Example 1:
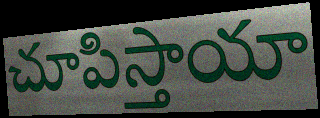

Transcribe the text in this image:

చూపిస్తాయా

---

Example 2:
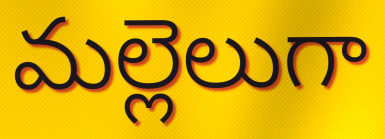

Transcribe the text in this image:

మల్లెలుగా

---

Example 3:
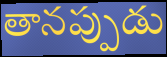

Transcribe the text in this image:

తానప్పుడు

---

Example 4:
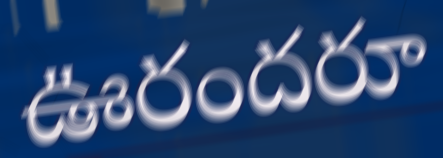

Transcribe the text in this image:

ఊరందరూ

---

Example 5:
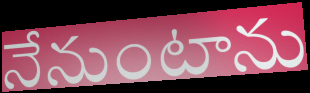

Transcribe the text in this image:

నేనుంటాను